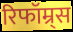
रिफॉम्र्स